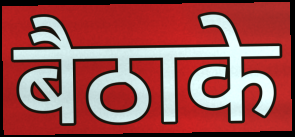
बैठाके